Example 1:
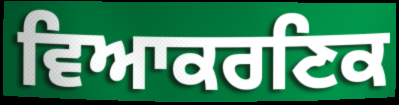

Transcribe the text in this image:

ਵਿਆਕਰਣਿਕ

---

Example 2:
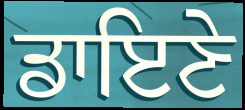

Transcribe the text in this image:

ਡਾਇਣੇ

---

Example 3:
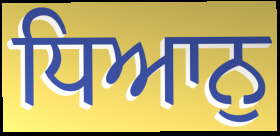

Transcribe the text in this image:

ਧਿਆਨੁ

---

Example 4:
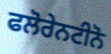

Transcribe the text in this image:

ਫਲੋਰੇਨਟੀਨੋ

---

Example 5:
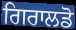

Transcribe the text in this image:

ਗਿਰਾਲਡੋ